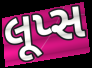
લૂપ્સ